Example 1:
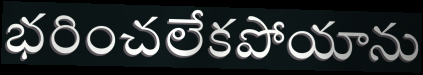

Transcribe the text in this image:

భరించలేకపోయాను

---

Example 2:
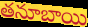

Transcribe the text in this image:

తనూబాయి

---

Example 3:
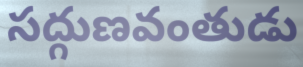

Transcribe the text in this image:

సద్గుణవంతుడు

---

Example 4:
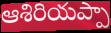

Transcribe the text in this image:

ఆశిరియప్పా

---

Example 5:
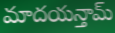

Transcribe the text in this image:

మాదయన్తామ్